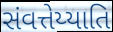
સંવત્તેય્યાતિ